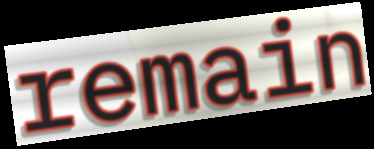
remain